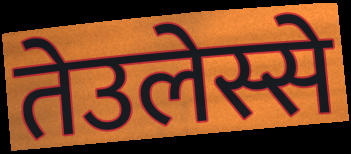
तेउलेस्से